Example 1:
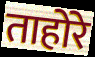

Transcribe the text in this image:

ताहोरे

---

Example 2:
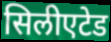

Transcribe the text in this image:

सिलीएटेड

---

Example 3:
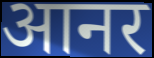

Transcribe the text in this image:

आनर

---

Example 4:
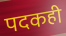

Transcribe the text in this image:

पदकही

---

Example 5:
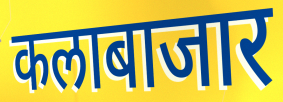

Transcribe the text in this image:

कलाबाजार